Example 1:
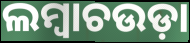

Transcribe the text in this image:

ଲମ୍ବାଚଉଡ଼ା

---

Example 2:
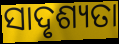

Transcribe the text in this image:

ସାଦୃଶ୍ୟତା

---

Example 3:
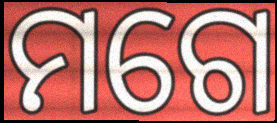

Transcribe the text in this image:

ମଗେ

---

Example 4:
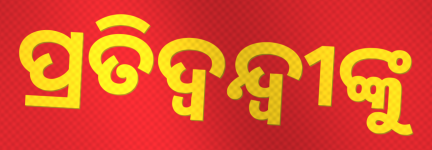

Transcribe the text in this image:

ପ୍ରତିଦ୍ବନ୍ଦ୍ବୀଙ୍କୁ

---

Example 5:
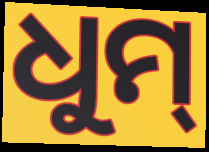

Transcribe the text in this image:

ଧୁମ୍